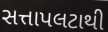
સત્તાપલટાથી